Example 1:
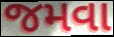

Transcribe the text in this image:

જમવા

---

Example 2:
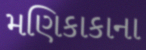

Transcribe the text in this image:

મણિકાકાના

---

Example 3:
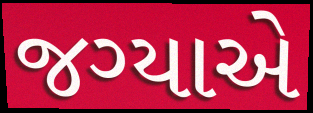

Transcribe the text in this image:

જગ્યાએ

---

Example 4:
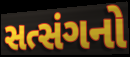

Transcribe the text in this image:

સત્સંગનો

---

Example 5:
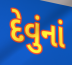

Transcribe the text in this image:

દેવુંનાં